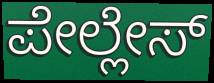
ಪೇಲ್ಲೇಸ್